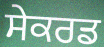
ਸੇਕਰਡ